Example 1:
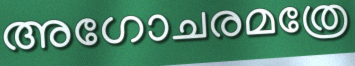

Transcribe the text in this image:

അഗോചരമത്രേ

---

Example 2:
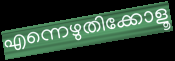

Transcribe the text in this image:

എന്നെഴുതിക്കോളൂ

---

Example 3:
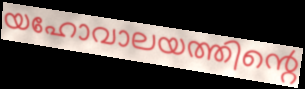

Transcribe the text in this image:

യഹോവാലയത്തിന്റെ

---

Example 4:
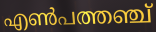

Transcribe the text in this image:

എൺപത്തഞ്ച്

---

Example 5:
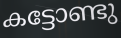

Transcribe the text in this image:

കട്ടോണ്ടു